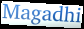
Magadhi